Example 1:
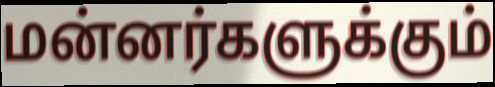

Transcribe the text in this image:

மன்னர்களுக்கும்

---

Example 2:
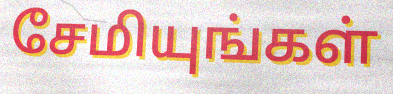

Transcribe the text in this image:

சேமியுங்கள்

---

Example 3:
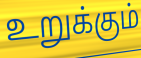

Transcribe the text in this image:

உறுக்கும்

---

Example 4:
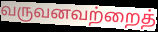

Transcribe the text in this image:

வருவனவற்றைத்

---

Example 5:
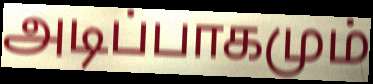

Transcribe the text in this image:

அடிப்பாகமும்